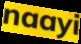
naayi